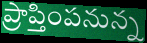
ప్రాప్తింపనున్న